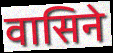
वासिने